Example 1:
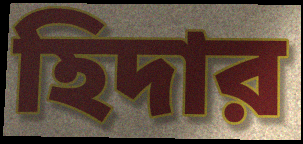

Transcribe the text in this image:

হিদার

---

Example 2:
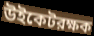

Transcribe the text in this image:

উইকেটরক্ষক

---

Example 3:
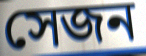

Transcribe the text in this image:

সেজন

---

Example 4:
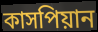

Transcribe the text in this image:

কাসপিয়ান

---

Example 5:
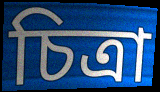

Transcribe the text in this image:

চিত্রা